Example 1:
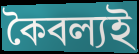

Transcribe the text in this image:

কৈবল্যই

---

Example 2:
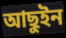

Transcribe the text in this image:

আছুইন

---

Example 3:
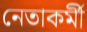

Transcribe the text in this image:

নেতাকর্মী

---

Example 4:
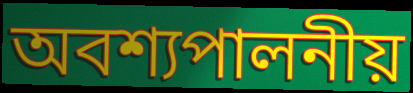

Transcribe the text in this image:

অবশ্যপালনীয়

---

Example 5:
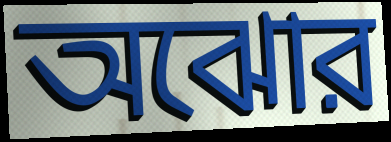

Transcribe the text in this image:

অঝোর